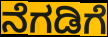
ನೆಗಡಿಗೆ